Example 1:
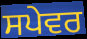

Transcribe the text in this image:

ਸਪੇਵਰ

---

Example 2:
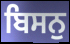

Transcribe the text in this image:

ਬਿਸਨੁ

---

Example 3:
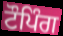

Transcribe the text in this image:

ਟੌਪਿੰਗ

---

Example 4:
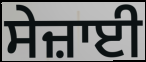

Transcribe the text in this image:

ਸੇਜ਼ਾਈ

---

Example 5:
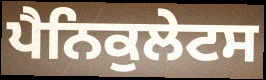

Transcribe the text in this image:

ਪੈਨਿਕੁਲੇਟਸ